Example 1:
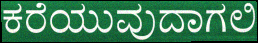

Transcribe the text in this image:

ಕರೆಯುವುದಾಗಲಿ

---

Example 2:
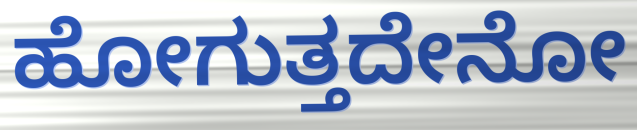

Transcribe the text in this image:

ಹೋಗುತ್ತದೇನೋ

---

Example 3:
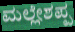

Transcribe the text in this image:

ಮಲ್ಲೇಶಪ್ಪ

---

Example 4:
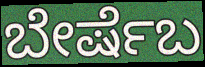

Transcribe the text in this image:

ಬೇರ್ಷೆಬ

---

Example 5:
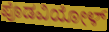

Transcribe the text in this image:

ಪೊಡವಿಯೋಳ್